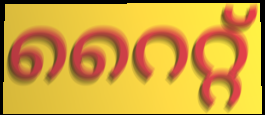
റൈറ്റ്